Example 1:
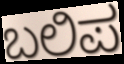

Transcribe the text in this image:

ಬಲಿಪ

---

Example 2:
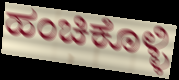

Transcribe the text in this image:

ಹಂಚಿಕೊಳ್ಳಿ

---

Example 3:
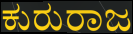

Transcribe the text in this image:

ಕುರುರಾಜ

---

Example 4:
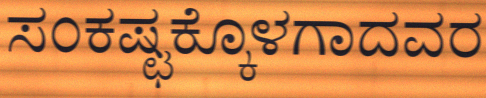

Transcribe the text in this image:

ಸಂಕಷ್ಟಕ್ಕೊಳಗಾದವರ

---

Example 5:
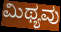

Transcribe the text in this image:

ಮಿಥ್ಯವು